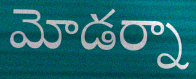
మోడర్నా